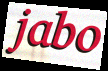
jabo